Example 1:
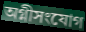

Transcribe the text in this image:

অগ্নীসংযোগ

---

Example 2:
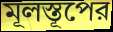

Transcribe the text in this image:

মূলস্তূপের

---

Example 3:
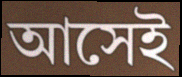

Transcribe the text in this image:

আসেই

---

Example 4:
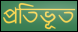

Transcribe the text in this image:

প্রতিভূত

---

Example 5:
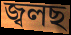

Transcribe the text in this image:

জ্বলছ